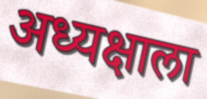
अध्यक्षाला